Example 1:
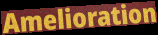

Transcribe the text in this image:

Amelioration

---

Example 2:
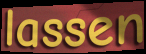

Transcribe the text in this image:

lassen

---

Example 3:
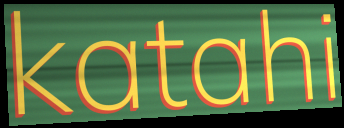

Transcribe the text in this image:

katahi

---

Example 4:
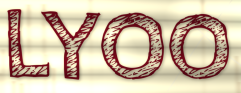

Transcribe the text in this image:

LYOO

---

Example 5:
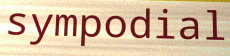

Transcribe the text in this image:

sympodial